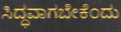
ಸಿದ್ಧವಾಗಬೇಕೆಂದು